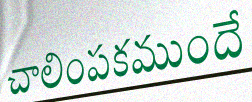
చాలింపకముందే